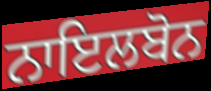
ਨਾਇਲਬੋਨ